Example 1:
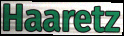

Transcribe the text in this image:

Haaretz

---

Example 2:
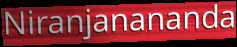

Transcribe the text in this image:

Niranjanananda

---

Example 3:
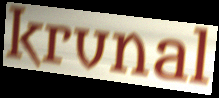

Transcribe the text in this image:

krunal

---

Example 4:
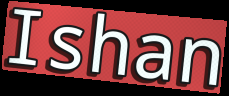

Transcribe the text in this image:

Ishan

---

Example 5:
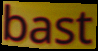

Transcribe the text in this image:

bast